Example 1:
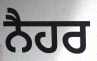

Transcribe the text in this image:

ਨੈਹਰ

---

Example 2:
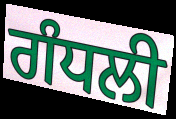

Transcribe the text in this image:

ਗੰਧਲੀ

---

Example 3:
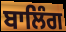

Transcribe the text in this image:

ਬਾਲਿੰਗ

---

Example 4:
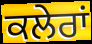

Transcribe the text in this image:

ਕਲੇਰਾਂ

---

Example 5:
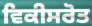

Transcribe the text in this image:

ਵਿਕੀਸਰੋਤ